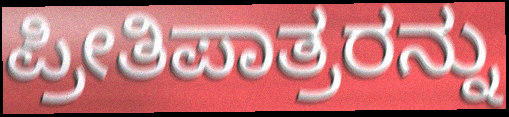
ಪ್ರೀತಿಪಾತ್ರರನ್ನು